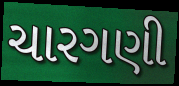
ચારગણી